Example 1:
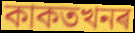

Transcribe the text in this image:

কাকতখনৰ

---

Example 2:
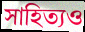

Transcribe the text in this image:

সাহিত্য়ও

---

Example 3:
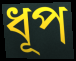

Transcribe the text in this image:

ধূপ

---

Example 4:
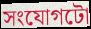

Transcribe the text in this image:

সংযোগটো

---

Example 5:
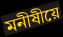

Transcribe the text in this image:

মনীষীয়ে